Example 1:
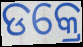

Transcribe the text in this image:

ଡକ୍ରେ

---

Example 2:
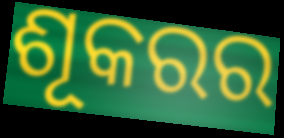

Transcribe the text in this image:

ଶୂକରର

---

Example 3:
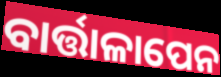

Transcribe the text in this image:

ବାର୍ତ୍ତାଳାପେନ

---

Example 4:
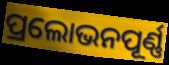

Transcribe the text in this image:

ପ୍ରଲୋଭନପୂର୍ଣ୍ଣ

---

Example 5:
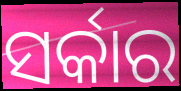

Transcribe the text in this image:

ସର୍କାର